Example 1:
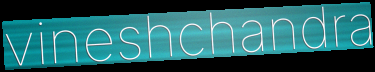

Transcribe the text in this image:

vineshchandra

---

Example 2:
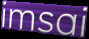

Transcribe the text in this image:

imsai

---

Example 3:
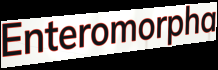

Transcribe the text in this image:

Enteromorpha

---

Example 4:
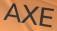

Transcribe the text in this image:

AXE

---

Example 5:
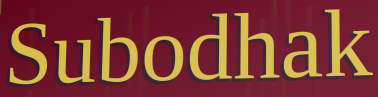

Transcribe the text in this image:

Subodhak